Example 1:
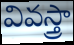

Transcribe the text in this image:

వివస్త్రా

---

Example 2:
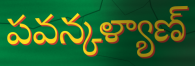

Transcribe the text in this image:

పవన్కళ్యాణ్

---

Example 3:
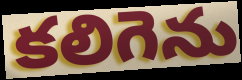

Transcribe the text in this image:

కలిగెను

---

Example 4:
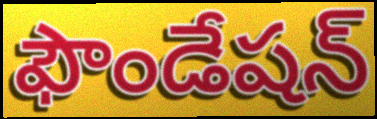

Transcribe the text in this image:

ఫౌండేషన్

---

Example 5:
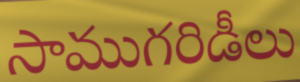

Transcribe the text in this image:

సాముగరిడీలు